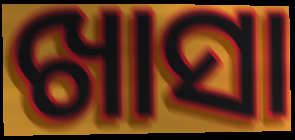
ଖାସା